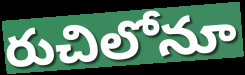
రుచిలోనూ